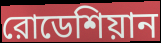
রোডেশিয়ান